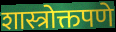
शास्त्रोक्तपणे